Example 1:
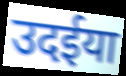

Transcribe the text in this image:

उदईया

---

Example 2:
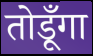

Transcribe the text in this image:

तोडूँगा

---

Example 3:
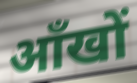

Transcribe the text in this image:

आँखों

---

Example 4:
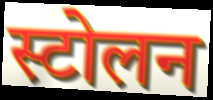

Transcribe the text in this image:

स्टोलन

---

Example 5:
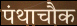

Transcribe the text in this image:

पंथाचौक